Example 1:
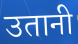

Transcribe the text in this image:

उतानी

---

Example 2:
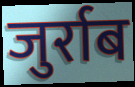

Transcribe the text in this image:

जुर्राब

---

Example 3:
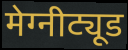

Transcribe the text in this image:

मेग्नीट्यूड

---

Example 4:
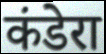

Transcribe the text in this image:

कंडेरा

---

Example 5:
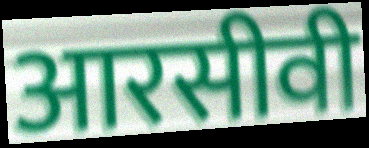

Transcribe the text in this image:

आरसीवी